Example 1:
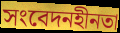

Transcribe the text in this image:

সংবেদনহীনতা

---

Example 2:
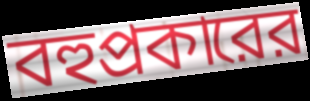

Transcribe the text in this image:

বহুপ্রকারের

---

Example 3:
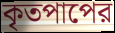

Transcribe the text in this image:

কৃতপাপের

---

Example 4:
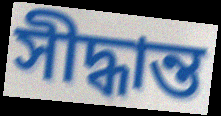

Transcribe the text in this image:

সীদ্ধান্ত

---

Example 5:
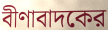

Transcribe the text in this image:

বীণাবাদকের